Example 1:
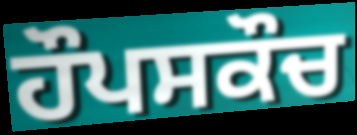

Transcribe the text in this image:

ਹੌਪਸਕੌਚ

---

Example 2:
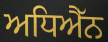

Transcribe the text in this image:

ਅਧਿਐੱਨ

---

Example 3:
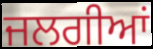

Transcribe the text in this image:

ਜਲਗੀਆਂ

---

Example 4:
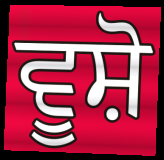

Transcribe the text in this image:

ਵੂਸ਼ੋ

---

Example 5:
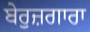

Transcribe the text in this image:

ਬੇਰੁਜ਼ਗਾਰਾ